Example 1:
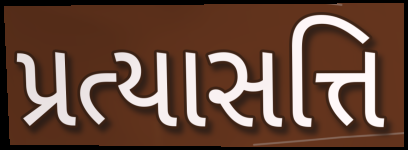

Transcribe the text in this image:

પ્રત્યાસત્તિ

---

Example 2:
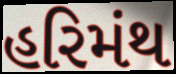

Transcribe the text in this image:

હરિમંથ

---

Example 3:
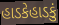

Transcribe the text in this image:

હાડકેહાડકું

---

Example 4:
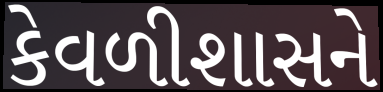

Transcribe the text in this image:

કેવળીશાસને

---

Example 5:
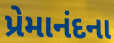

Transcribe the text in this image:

પ્રેમાનંદના